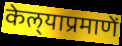
केल्याप्रमाणें